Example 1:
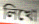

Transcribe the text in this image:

লিখো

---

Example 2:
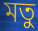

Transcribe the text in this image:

মতু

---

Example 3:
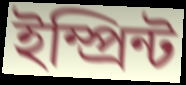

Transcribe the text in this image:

ইম্প্ৰিন্ট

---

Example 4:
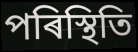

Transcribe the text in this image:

পৰিস্থিতি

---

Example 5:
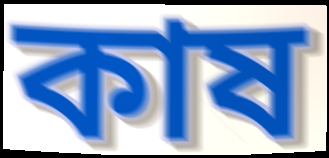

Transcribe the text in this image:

কাষ